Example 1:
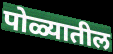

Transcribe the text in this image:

पोळ्यातील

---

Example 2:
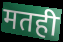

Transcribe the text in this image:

मतही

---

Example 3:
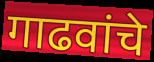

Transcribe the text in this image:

गाढवांचे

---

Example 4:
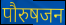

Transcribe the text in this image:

पौरुषजन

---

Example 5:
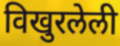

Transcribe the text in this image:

विखुरलेली